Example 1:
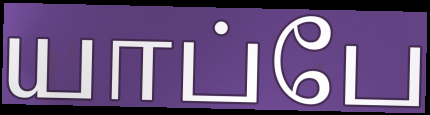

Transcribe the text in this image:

யாப்பே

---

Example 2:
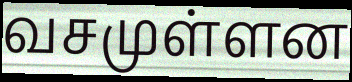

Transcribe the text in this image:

வசமுள்ளன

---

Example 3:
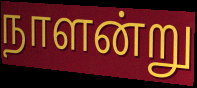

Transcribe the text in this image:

நாளன்று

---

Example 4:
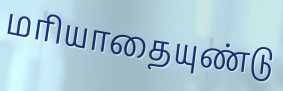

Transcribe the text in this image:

மரியாதையுண்டு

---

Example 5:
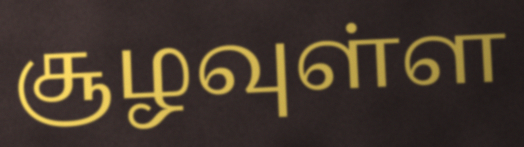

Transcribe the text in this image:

சூழவுள்ள